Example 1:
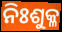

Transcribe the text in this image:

ନିଃଶୁକ୍ଳ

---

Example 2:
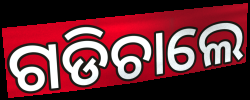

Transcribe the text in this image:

ଗଡିଚାଲେ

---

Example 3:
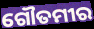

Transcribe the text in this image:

ଗୌତମୀର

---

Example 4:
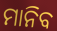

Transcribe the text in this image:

ମାନିବ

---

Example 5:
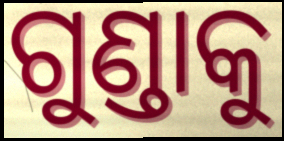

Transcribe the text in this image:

ଗୁଣ୍ଡାକୁ